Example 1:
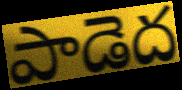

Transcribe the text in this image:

పాడెద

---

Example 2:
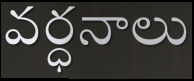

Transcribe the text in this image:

వర్ధనాలు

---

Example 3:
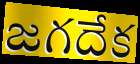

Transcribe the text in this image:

జగదేక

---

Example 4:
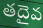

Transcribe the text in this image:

తదైవ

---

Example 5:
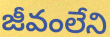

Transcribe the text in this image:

జీవంలేని